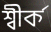
শ্বীৰ্ক